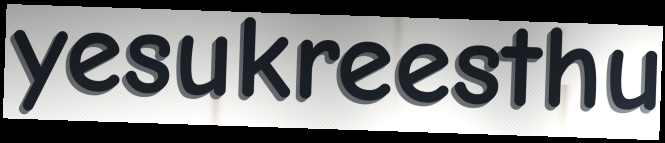
yesukreesthu